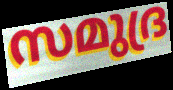
സമുദ്ര